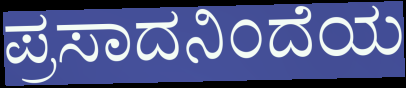
ಪ್ರಸಾದನಿಂದೆಯ